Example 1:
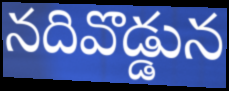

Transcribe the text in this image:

నదివొడ్డున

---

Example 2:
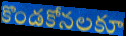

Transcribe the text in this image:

కొండకోనలకూ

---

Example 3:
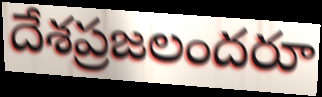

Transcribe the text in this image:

దేశప్రజలందరూ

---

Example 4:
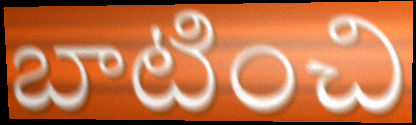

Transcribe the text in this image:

బాటించి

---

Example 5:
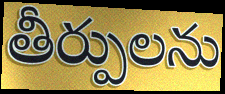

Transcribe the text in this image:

తీర్పులను